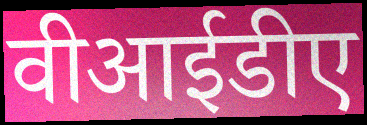
वीआईडीए